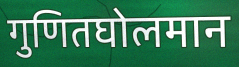
गुणितघोलमान